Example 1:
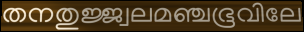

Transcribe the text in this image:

തനതുജ്ജ്വലമഞ്ചഭൂവിലേ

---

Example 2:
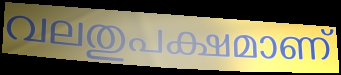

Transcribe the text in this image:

വലതുപക്ഷമാണ്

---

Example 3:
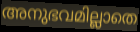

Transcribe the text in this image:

അനുഭവമില്ലാതെ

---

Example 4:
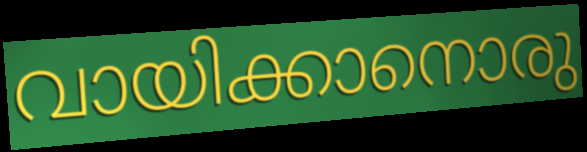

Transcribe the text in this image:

വായിക്കാനൊരു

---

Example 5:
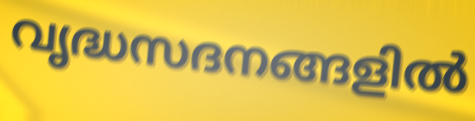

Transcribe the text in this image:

വൃദ്ധസദനങ്ങളിൽ